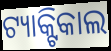
ଟ୍ୟାକ୍ଟିକାଲ